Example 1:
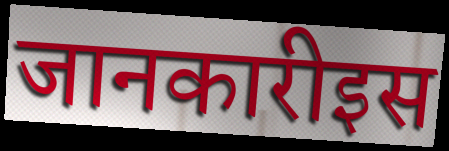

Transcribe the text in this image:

जानकारीइस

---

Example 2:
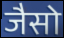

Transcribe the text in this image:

जैसो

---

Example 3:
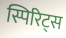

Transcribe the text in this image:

स्पिरिट्स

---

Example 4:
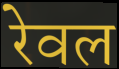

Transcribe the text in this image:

रेवल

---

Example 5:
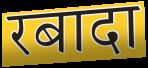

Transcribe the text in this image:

रबादा